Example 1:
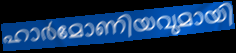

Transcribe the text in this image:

ഹാർമോണിയവുമായി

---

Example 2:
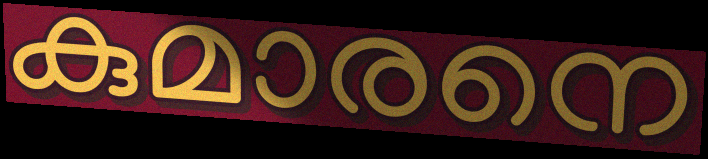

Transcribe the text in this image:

കുമാരനെ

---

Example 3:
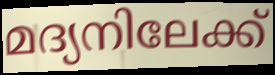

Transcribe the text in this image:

മദ്യനിലേക്ക്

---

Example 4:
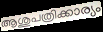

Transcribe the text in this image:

ആശുപത്രിക്കാര്യം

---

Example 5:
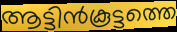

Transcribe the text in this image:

ആട്ടിൻകൂട്ടത്തെ